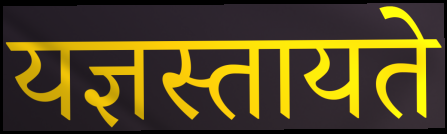
यज्ञस्तायते